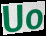
Uo